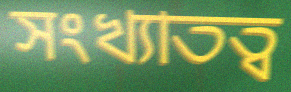
সংখ্যাতত্ব